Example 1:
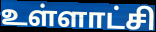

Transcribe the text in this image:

உள்ளாட்சி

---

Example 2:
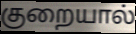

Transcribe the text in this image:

குறையால்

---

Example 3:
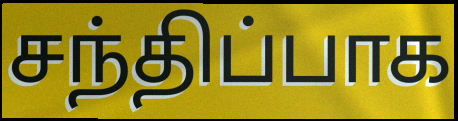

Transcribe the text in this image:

சந்திப்பாக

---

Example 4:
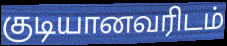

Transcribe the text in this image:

குடியானவரிடம்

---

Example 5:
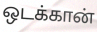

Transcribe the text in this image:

ஒடக்கான்